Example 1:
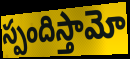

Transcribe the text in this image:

స్పందిస్తామో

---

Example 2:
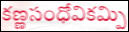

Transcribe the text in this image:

కణ్ణసంధోవికమ్పి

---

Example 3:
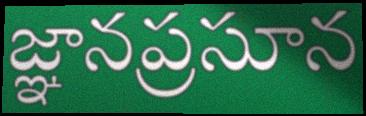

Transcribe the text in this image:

జ్ఞానప్రసూన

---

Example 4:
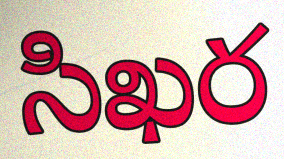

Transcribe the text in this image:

సిఖర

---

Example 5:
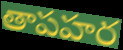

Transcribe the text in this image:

తాపహర